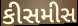
કીસમીસ